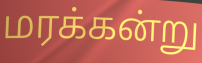
மரக்கன்று